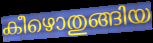
കീഴൊതുങ്ങിയ